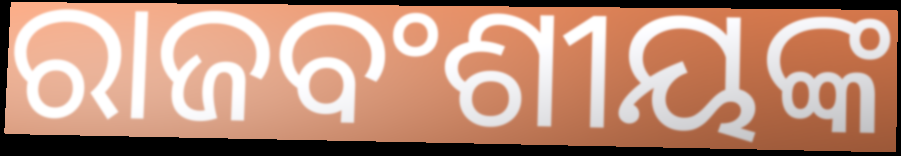
ରାଜବଂଶୀୟଙ୍କ